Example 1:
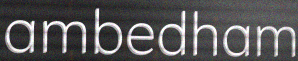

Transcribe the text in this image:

ambedham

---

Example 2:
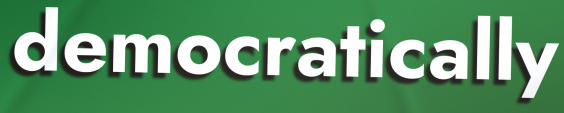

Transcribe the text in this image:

democratically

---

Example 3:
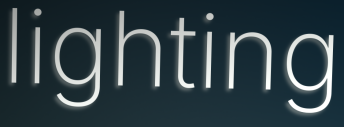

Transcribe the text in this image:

lighting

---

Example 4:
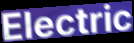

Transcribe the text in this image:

Electric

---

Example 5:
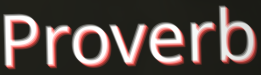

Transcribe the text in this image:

Proverb